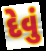
દેવું